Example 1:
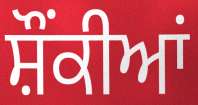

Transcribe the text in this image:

ਸ਼ੌਂਕੀਆਂ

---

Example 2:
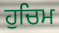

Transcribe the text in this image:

ਹੁਚਿਮ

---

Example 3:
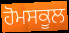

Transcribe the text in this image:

ਹੋਮਸਕੂਲ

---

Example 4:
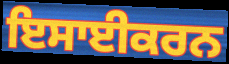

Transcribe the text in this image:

ਇਸਾਈਕਰਨ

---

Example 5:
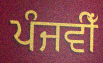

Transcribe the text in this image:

ਪੰਜਵੀਁ